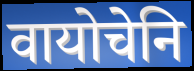
वायोचेनि